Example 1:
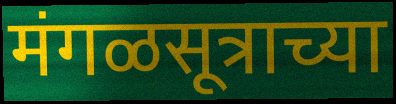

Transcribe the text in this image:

मंगळसूत्राच्या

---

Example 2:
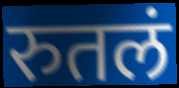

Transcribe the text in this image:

रुतलं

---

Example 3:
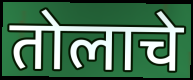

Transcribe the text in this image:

तोलाचे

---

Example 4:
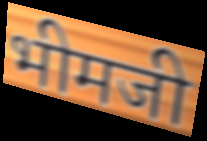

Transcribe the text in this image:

भीमजी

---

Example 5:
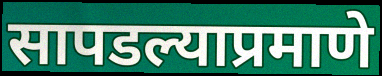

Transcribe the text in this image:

सापडल्याप्रमाणे